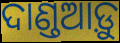
ଦାଣ୍ଡଆଡ଼ୁ